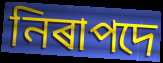
নিৰাপদে